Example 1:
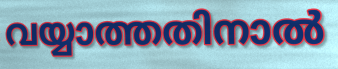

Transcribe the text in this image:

വയ്യാത്തതിനാൽ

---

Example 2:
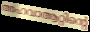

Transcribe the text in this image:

അഹവാആറ്റിന്റെ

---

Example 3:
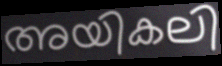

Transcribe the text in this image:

അയികലി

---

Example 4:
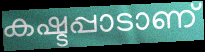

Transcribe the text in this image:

കഷ്ടപ്പാടാണ്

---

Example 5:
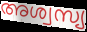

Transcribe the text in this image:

അശ്വസ്യ